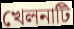
খেলনাটি